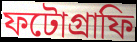
ফটোগ্রাফি